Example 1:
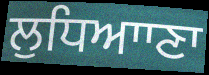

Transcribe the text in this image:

ਲੁਧਿਆਾਣਾ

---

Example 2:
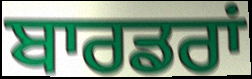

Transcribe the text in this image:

ਬਾਰਡਰਾਂ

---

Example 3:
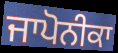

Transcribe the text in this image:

ਜਾਪੋਨੀਕਾ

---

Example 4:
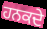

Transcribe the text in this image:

ਹਨਕਦੇ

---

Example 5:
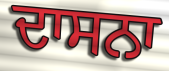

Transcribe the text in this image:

ਦਾਸਨਾ